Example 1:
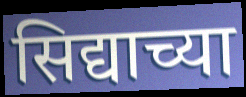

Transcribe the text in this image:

सिद्याच्या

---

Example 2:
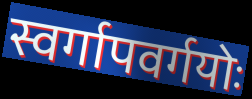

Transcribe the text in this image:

स्वर्गापवर्गयोः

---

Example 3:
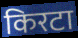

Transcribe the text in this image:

किरटा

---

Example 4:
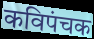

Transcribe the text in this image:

कविपंचक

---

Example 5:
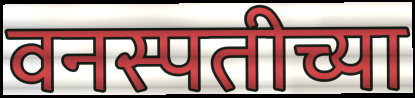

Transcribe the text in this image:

वनस्पतीच्या